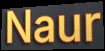
Naur